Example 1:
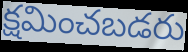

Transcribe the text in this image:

క్షమించబడరు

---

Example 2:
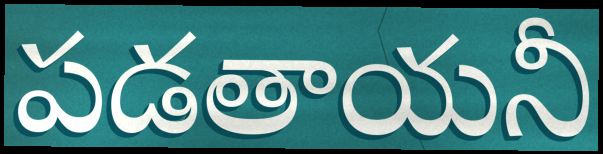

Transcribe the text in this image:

పడతాయనీ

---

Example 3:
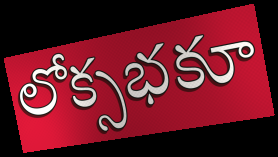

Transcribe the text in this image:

లోక్సభకూ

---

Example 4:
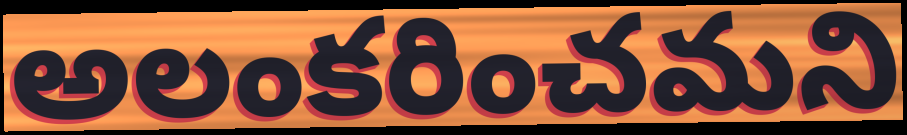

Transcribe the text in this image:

అలంకరించమని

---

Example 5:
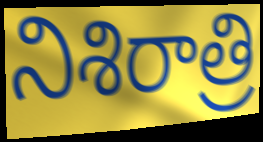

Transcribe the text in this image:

నిశిరాత్రి